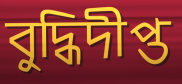
বুদ্ধিদীপ্ত